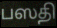
பஸதி